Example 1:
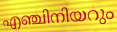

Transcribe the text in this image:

എഞ്ചിനിയറും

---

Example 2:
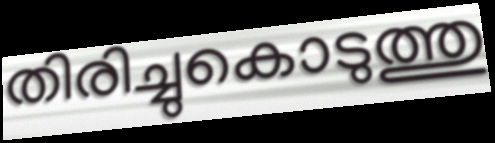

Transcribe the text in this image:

തിരിച്ചുകൊടുത്തു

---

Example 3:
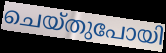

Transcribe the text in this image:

ചെയ്തുപോയി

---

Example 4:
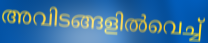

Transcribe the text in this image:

അവിടങ്ങളിൽവെച്ച്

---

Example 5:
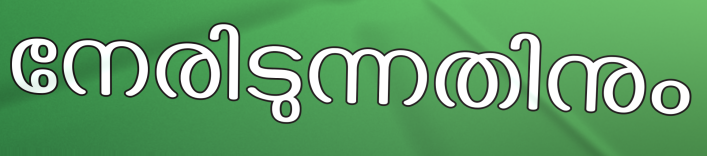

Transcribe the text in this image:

നേരിടുന്നതിനും